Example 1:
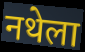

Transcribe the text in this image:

नथेला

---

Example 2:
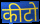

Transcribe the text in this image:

कीटो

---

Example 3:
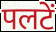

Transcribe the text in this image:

पलटें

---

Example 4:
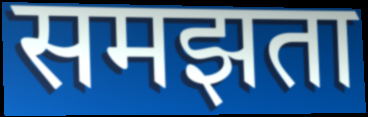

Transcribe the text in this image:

समझता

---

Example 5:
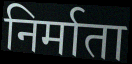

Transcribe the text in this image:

निर्माता